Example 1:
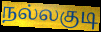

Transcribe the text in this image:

நல்லகுடி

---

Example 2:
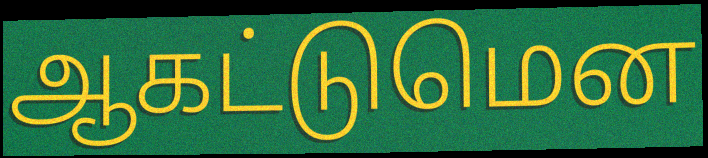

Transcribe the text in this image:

ஆகட்டுமென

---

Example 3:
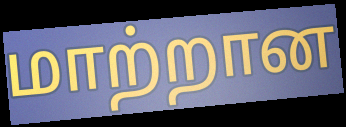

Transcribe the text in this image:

மாற்றான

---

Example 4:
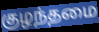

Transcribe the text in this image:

குழந்தமை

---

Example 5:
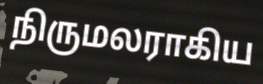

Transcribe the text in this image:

நிருமலராகிய